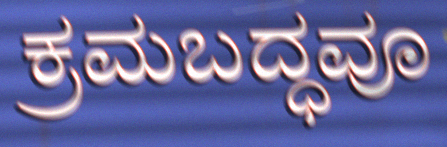
ಕ್ರಮಬದ್ಧವೂ